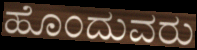
ಹೊಂದುವರು